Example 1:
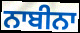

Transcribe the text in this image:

ਨਾਬੀਨਾ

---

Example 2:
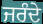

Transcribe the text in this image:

ਜਰੰਦੇ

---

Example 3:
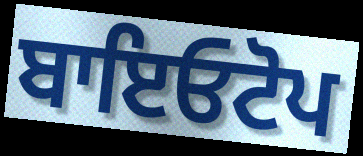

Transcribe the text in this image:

ਬਾਇਓਟੋਪ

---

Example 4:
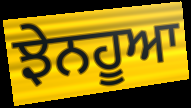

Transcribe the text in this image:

ਝੇਨਹੂਆ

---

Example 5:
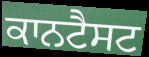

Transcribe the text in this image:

ਕਾਨਟੈਸਟ